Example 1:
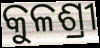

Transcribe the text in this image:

କୁଳଶ୍ରୀ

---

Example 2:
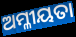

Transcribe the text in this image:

ଅମ୍ଳୀୟତା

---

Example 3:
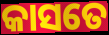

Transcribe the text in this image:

କାସତେ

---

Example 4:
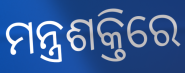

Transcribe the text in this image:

ମନ୍ତ୍ରଶକ୍ତିରେ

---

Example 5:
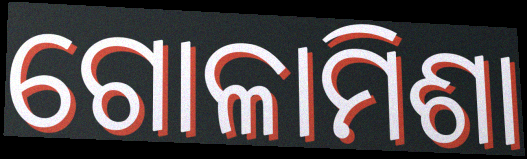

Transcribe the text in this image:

ଗୋଳାମିଶା